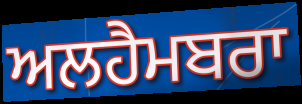
ਅਲਹੈਮਬਰਾ